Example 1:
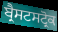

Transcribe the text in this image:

ਬ੍ਰੈਸਟਸਟ੍ਰੋਕ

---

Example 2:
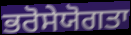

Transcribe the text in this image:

ਭਰੋਸੇਯੋਗਤਾ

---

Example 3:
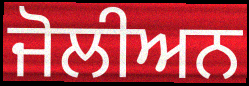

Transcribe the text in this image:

ਜੋਲੀਅਨ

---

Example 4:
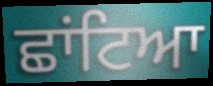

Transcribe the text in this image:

ਛਾਂਟਿਆ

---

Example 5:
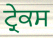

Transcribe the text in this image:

ਟ੍ਰੇਕਸ